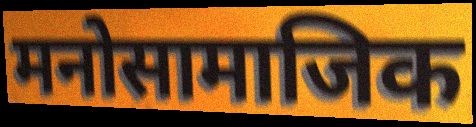
मनोसामाजिक